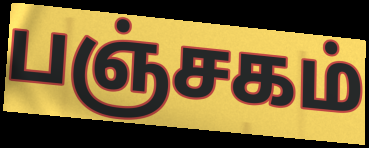
பஞ்சகம்